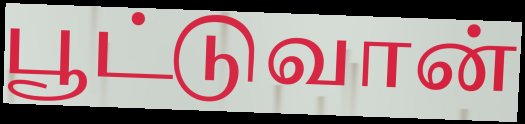
பூட்டுவான்